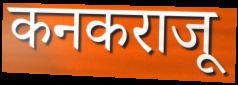
कनकराजू